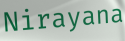
Nirayana